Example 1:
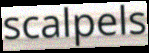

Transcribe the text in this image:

scalpels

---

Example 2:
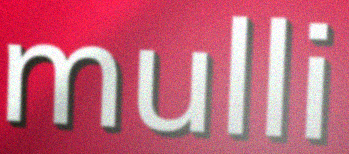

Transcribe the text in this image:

mulli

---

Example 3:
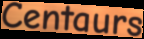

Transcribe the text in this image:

Centaurs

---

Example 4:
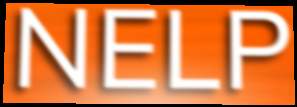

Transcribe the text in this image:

NELP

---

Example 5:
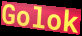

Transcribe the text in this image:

Golok